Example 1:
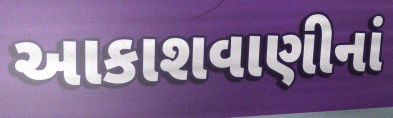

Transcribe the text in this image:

આકાશવાણીનાં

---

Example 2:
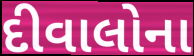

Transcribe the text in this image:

દીવાલોના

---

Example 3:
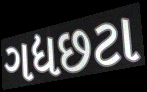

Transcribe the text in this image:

ગદ્યછટા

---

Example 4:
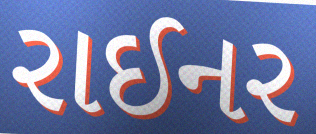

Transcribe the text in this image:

રાઈનર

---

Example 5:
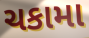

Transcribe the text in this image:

ચકામા